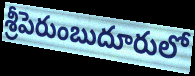
శ్రీపెరుంబుదూరులో